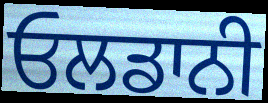
ਓਲਡਾਨੀ